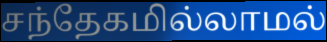
சந்தேகமில்லாமல்